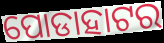
ପୋଡାହାଟର